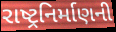
રાષ્ટ્રનિર્માણની